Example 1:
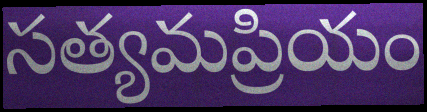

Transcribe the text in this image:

సత్యమప్రియం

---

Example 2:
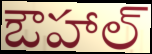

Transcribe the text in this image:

ఔహాల్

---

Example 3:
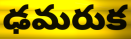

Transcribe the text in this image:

ఢమరుక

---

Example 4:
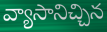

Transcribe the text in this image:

వ్యాసానిచ్చిన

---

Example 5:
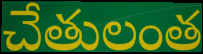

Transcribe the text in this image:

చేతులంత